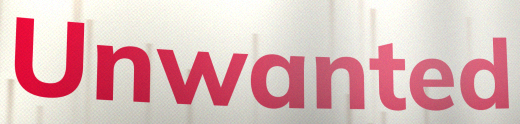
Unwanted